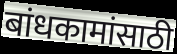
बांधकामांसाठी